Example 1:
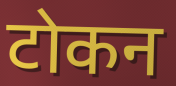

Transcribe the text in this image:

टोकन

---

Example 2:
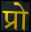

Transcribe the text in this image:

प्रो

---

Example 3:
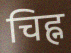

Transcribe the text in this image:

चिह्न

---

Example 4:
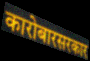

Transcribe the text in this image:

कारोबारसरकार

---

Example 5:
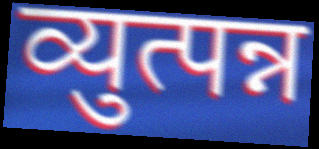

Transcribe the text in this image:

व्युत्पन्न